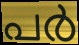
പർ